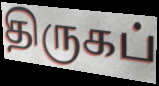
திருகப்